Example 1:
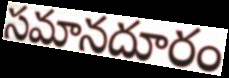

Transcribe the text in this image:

సమానదూరం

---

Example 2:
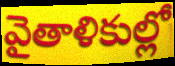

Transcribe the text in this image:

వైతాళికుల్లో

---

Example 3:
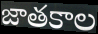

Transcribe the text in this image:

జాతకాల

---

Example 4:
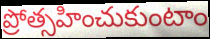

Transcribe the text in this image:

ప్రోత్సహించుకుంటాం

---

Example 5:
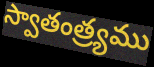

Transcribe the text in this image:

స్వాతంత్ర్యము